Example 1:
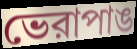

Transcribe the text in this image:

ভেরাপাঙ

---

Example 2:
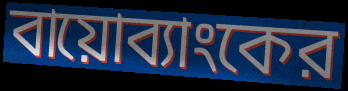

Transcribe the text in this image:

বায়োব্যাংকের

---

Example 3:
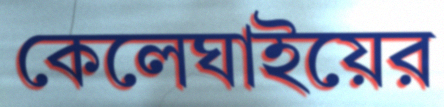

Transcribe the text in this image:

কেলেঘাইয়ের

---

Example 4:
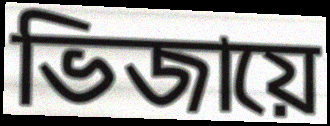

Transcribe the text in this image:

ভিজায়ে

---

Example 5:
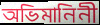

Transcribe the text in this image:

অভিমানিনী